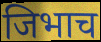
जिभाच